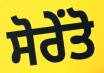
ਸੋਰੇਂਤੋ